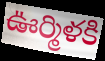
ఊర్మిళకి